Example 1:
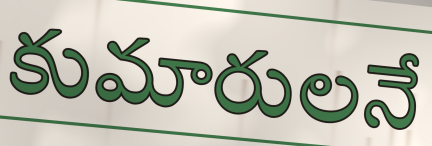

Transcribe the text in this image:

కుమారులనే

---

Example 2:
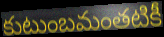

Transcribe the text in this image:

కుటుంబమంతటికీ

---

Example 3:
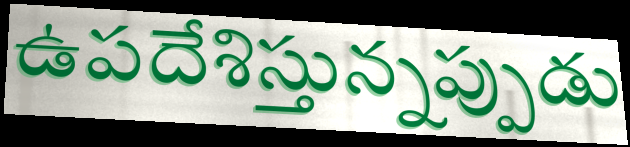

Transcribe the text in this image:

ఉపదేశిస్తున్నప్పుడు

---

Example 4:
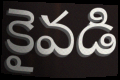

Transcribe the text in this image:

కైవడి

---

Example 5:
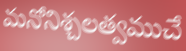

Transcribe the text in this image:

మనోనిశ్చలత్వముచే